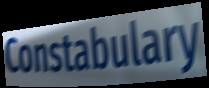
Constabulary